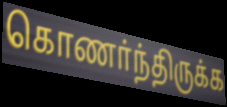
கொணர்ந்திருக்க